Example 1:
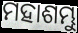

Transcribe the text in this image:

ମହାଶମ୍ଭୁ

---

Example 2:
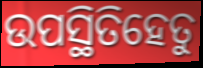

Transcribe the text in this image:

ଉପସ୍ଥିତିହେତୁ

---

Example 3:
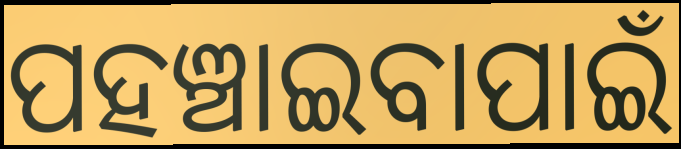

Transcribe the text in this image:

ପହଞ୍ଚାଇବାପାଇଁ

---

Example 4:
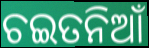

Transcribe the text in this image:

ଚଇତନିଆଁ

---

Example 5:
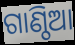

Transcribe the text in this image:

ଗାଣ୍ଠିଆ